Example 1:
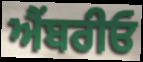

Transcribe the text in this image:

ਐਂਬਰੀਓ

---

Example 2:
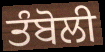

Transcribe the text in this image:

ਤੰਬੋਲੀ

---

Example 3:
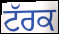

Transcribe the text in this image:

ਟੱਰਕ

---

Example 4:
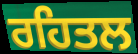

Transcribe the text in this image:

ਰਹਿਤਲ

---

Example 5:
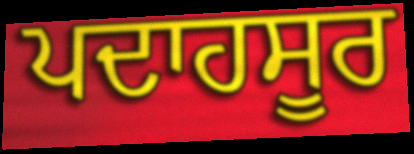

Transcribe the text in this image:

ਪਦਾਹਸੂਰ